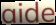
aide